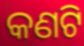
କଣଟି